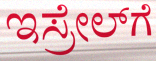
ಇಸ್ರೇಲ್‍ಗೆ